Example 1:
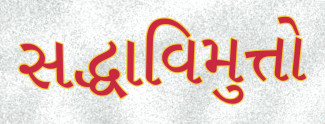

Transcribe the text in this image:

સદ્ધાવિમુત્તો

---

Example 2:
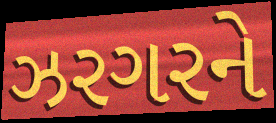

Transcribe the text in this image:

ઝરગરને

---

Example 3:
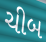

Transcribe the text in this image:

ચીબ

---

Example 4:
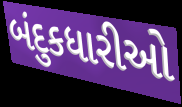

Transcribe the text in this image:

બંદુકધારીઓ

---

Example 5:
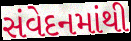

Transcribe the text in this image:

સંવેદનમાંથી